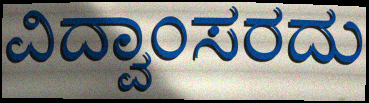
ವಿದ್ವಾಂಸರದು